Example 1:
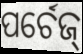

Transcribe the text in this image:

ପର୍ଚେଜ୍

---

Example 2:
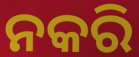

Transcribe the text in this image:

ନକରି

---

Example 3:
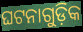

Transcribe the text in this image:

ଘଟନାଗୁଡ଼ିକ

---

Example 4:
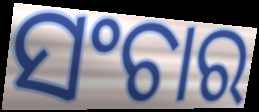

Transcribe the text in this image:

ସଂଚାର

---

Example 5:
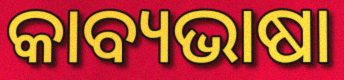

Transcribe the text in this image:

କାବ୍ୟଭାଷା